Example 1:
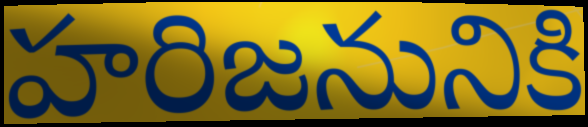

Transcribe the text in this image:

హరిజనునికి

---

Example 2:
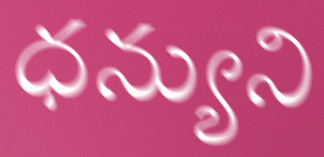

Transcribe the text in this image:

ధన్యుని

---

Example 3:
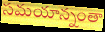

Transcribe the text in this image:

సమయాన్నంతా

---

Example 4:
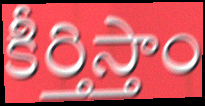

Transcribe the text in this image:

కీర్తిస్తాం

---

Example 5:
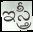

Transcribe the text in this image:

ఇస్త్రీ